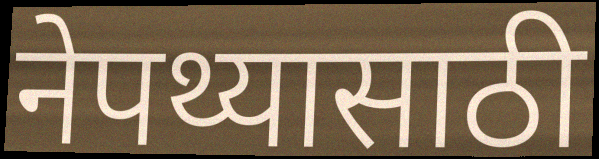
नेपथ्यासाठी